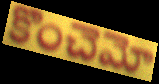
కొంచెమో